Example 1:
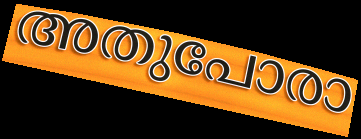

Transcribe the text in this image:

അതുപോരാ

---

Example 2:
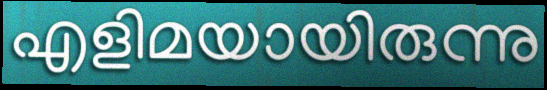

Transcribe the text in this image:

എളിമയായിരുന്നു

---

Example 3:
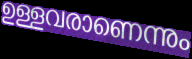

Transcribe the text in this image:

ഉള്ളവരാണെന്നും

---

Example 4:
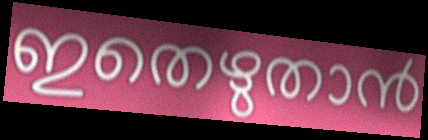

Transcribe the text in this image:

ഇതെഴുതാൻ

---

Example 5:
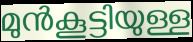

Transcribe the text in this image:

മുൻകൂട്ടിയുള്ള